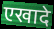
एखादे